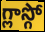
గ్లాస్గో